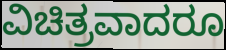
ವಿಚಿತ್ರವಾದರೂ